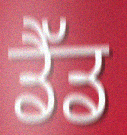
ਡੈੱਡ